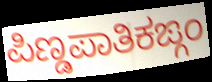
ಪಿಣ್ಡಪಾತಿಕಙ್ಗಂ